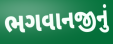
ભગવાનજીનું